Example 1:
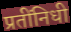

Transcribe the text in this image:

प्रतींनिधी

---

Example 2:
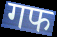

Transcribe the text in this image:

गफ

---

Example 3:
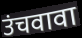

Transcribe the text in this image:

उंचवावा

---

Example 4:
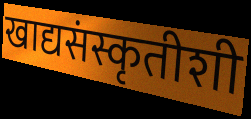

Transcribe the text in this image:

खाद्यसंस्कृतीशी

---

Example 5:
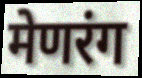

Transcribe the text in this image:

मेणरंग